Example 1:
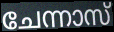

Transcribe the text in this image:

ചേന്നാസ്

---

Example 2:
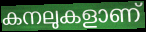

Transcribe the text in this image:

കനലുകളാണ്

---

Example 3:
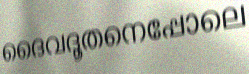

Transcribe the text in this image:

ദൈവദൂതനെപ്പോലെ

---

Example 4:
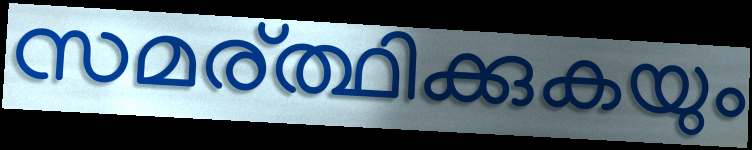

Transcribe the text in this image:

സമര്ത്ഥിക്കുകയും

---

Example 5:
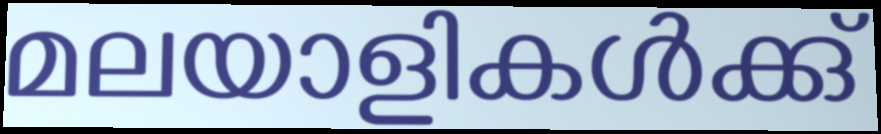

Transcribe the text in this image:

മലയാളികൾക്കു്